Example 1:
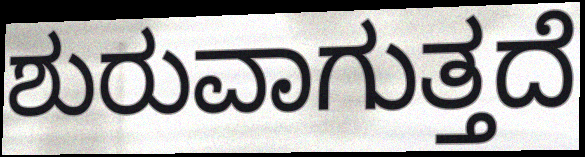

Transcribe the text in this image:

ಶುರುವಾಗುತ್ತದೆ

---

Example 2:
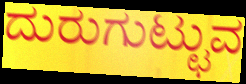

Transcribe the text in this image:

ದುರುಗುಟ್ಟುವ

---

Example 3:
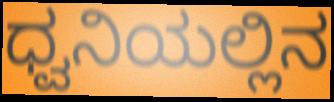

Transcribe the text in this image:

ಧ್ವನಿಯಲ್ಲಿನ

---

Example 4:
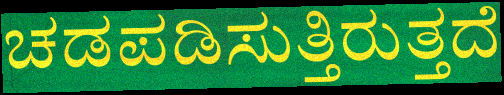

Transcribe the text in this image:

ಚಡಪಡಿಸುತ್ತಿರುತ್ತದೆ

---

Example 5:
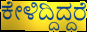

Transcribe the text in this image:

ಕೇಳಿದ್ದಿದ್ದರೆ